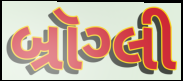
બ્રૉગ્લી